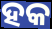
ହକ